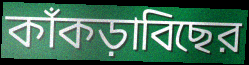
কাঁকড়াবিছের